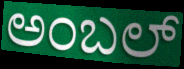
ಅಂಬಲ್